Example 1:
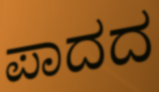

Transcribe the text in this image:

ಪಾದದ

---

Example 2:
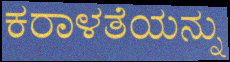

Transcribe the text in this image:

ಕರಾಳತೆಯನ್ನು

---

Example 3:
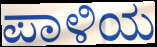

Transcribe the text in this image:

ಪಾಳಿಯ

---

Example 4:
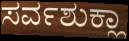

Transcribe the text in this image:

ಸರ್ವಶುಕ್ಲಾ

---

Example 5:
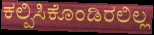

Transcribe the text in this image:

ಕಲ್ಪಿಸಿಕೊಂಡಿರಲಿಲ್ಲ